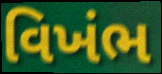
વિખંભ